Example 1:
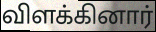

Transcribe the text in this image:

விளக்கினார்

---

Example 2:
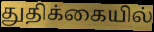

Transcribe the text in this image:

துதிக்கையில்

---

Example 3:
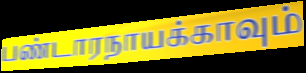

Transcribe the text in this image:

பண்டாரநாயக்காவும்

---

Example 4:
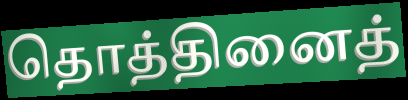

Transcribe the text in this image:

தொத்தினைத்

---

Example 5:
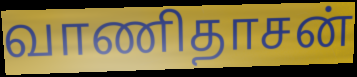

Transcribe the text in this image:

வாணிதாசன்